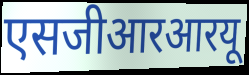
एसजीआरआरयू